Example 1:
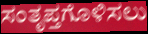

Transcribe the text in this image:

ಸಂತೃಪ್ತಗೊಳಿಸಲು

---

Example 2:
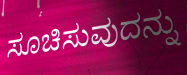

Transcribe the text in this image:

ಸೂಚಿಸುವುದನ್ನು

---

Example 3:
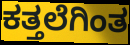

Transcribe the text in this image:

ಕತ್ತಲೆಗಿಂತ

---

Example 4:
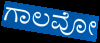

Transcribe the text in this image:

ಗಾಲವೋ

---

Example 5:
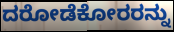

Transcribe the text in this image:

ದರೋಡೆಕೋರರನ್ನು